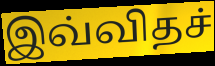
இவ்விதச்